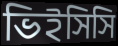
ভিইসিসি